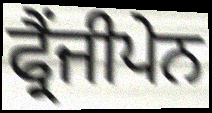
ਫ੍ਰੈਂਜੀਪੇਨ